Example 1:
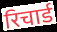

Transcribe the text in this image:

रिचार्ड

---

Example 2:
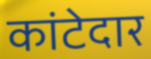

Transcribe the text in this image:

कांटेदार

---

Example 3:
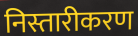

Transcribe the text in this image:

निस्तारीकरण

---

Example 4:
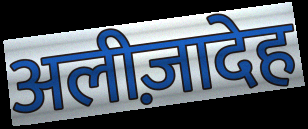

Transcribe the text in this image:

अलीज़ादेह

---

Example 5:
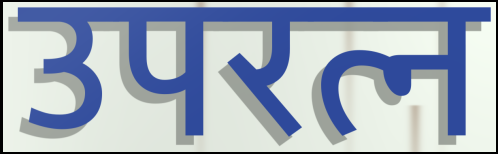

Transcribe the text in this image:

उपरत्न